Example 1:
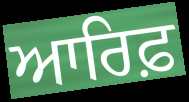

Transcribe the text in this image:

ਆਰਿਫ਼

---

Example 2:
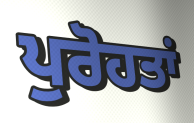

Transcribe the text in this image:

ਪੁਰੋਹਤਾਂ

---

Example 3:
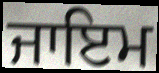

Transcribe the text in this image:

ਜਾਇਮ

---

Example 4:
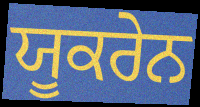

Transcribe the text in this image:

ਯੂਕਰੇਨ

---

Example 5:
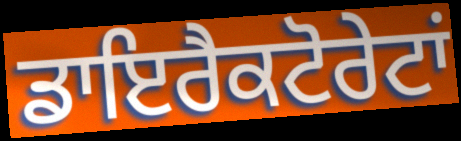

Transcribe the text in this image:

ਡਾਇਰੈਕਟੋਰੇਟਾਂ